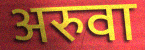
अरुवा